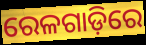
ରେଳଗାଡ଼ିରେ